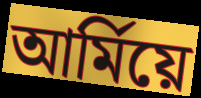
আৰ্মিয়ে